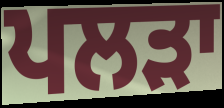
ਪਲੜਾ